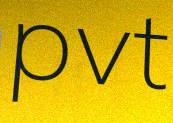
pvt